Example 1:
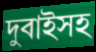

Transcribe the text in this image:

দুবাইসহ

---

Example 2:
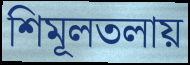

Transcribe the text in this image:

শিমূলতলায়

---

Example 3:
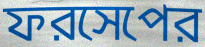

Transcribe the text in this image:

ফরসেপের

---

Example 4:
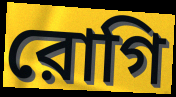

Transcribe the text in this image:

রোগি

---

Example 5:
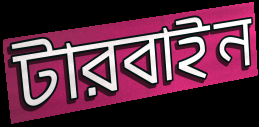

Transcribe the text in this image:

টারবাইন